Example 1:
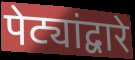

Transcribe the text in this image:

पेट्यांद्वारे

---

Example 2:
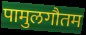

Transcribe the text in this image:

पामुलगौतम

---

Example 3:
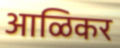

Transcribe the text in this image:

आळिकर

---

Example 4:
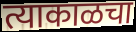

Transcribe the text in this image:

त्याकाळचा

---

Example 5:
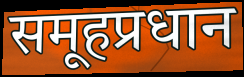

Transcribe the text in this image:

समूहप्रधान